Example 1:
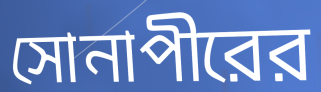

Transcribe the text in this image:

সোনাপীরের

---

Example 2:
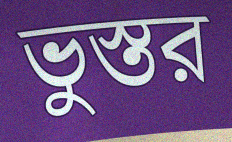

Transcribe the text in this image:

ভুস্তর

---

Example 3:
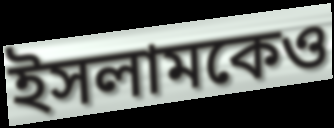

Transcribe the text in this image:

ইসলামকেও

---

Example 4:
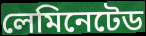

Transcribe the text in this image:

লেমিনেটেড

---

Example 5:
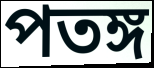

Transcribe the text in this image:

পতঙ্গ